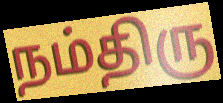
நம்திரு